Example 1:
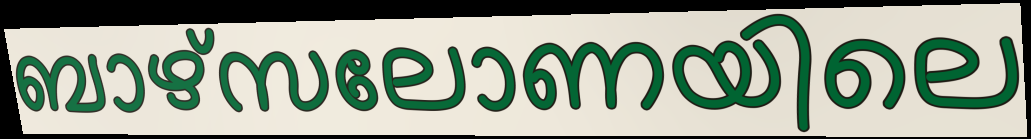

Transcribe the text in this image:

ബാഴ്സലോണയിലെ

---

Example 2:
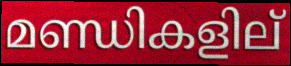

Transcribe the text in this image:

മണ്ഡികളില്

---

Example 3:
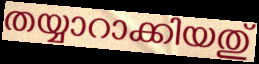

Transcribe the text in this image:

തയ്യാറാക്കിയതു്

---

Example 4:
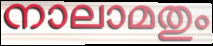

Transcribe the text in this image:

നാലാമതും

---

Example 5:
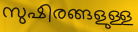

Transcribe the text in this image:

സുഷിരങ്ങളുള്ള